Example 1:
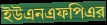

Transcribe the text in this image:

ইউএনএফপিএর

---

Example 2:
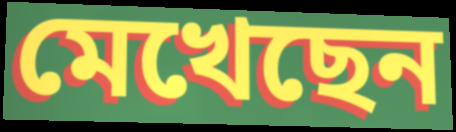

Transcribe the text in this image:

মেখেছেন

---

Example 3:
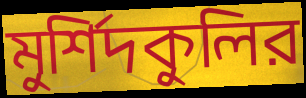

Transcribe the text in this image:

মুর্শিদকুলির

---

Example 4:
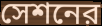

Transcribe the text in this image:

সেশনের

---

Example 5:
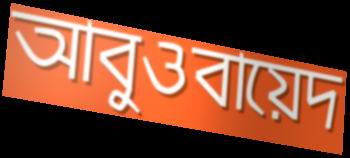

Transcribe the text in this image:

আবুওবায়েদ